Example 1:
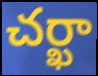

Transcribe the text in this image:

చర్ఖా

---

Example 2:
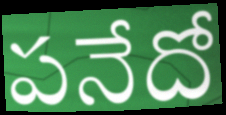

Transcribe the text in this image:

పనేదో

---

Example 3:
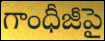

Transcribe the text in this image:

గాంధీజీపై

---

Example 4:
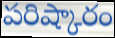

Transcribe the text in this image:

పరిష్కారం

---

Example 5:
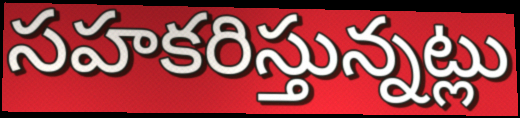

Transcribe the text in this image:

సహకరిస్తున్నట్లు